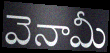
వెనామీ